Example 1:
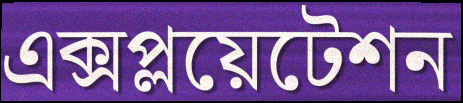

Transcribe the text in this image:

এক্সপ্লয়েটেশন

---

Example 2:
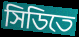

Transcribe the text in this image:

সিডিতে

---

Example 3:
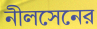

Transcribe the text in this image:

নীলসেনের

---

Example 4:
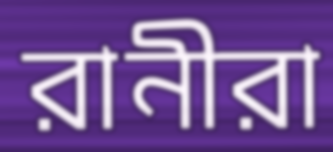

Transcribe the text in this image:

রানীরা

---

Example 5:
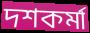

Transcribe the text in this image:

দশকর্মা